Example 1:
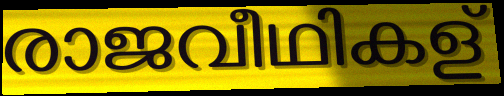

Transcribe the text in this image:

രാജവീഥികള്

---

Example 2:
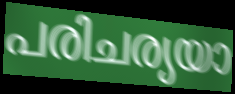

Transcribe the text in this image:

പരിചര്യയാ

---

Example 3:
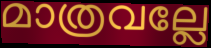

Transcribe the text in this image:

മാത്രവല്ലേ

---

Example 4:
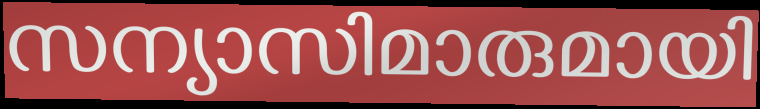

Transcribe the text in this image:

സന്യാസിമാരുമായി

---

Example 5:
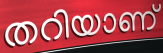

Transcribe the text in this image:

തറിയാണ്